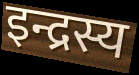
इन्द्रस्य